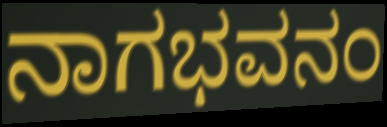
ನಾಗಭವನಂ